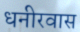
धनीरवास